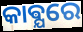
କାଵ୍ଯରେ